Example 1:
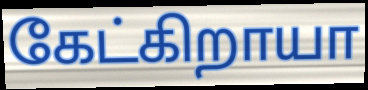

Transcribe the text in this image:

கேட்கிறாயா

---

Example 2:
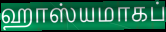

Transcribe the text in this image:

ஹாஸ்யமாகப்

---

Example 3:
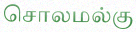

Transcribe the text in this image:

சொலமல்கு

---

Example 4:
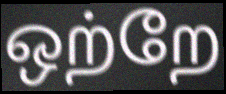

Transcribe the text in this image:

ஒற்றே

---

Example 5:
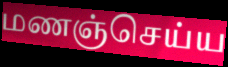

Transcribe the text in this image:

மணஞ்செய்ய